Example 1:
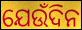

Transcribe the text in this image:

ଯେଉଁଦିନ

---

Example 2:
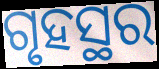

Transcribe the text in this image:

ଗୃହସ୍ଥର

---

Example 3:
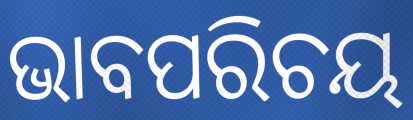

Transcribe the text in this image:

ଭାବପରିଚୟ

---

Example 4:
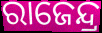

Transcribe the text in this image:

ରାଜେନ୍ଦ୍ର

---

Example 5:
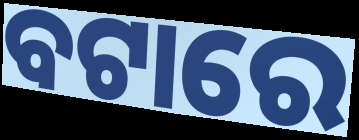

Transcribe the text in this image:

ବଟାରେ